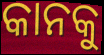
କାନକୁ